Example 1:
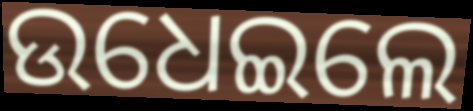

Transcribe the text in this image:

ଉଧେଇଲେ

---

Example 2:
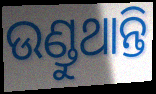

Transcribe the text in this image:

ଉଣ୍ଡୁଥାନ୍ତି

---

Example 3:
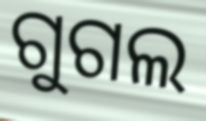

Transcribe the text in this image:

ଗୁଗଲ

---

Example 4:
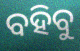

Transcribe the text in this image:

ବହିବୁ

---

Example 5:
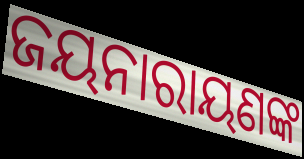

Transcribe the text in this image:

ଜୟନାରାୟଣଙ୍କ